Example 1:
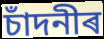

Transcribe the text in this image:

চাঁদনীৰ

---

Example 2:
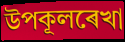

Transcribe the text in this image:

উপকূলৰেখা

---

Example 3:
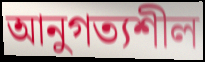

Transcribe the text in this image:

আনুগত্যশীল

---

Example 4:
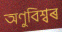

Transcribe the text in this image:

অণুবিশ্বৰ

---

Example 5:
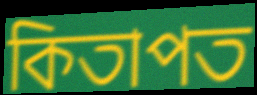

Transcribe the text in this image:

কিতাপত